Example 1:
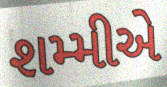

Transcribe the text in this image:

શમ્મીએ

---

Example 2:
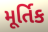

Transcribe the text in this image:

મૂર્તિક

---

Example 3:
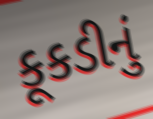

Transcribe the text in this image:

કૂકડીનું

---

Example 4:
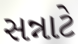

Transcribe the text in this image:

સન્નાટે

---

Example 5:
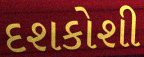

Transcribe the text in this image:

દશકોશી